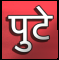
पुटे